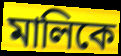
মালিকে